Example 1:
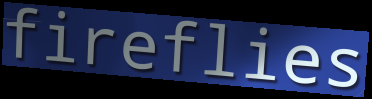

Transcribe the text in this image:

fireflies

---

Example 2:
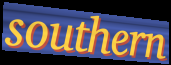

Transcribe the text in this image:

southern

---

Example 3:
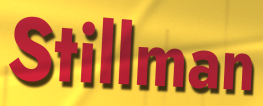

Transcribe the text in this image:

Stillman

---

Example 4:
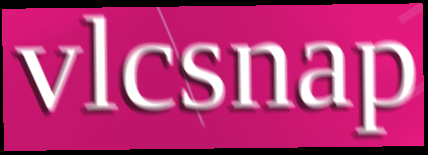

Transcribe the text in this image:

vlcsnap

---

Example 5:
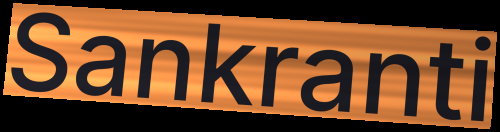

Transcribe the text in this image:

Sankranti